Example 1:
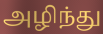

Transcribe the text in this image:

அழிந்து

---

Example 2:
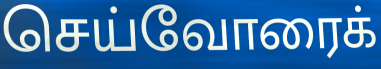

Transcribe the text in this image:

செய்வோரைக்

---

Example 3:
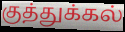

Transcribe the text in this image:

குத்துக்கல்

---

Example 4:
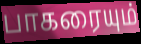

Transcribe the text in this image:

பாகரையும்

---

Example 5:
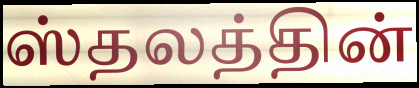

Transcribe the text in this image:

ஸ்தலத்தின்